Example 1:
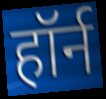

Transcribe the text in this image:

हॉर्न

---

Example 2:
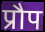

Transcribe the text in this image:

प्रौप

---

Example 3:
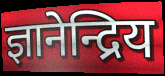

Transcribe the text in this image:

ज्ञानेन्द्रिय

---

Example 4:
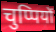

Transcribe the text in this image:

चुप्पियों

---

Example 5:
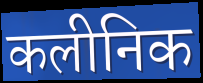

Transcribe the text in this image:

कलीनिक